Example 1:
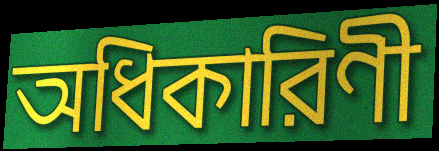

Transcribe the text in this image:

অধিকারিণী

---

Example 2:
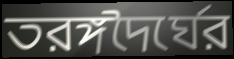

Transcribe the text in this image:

তরঙ্গদৈর্ঘের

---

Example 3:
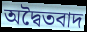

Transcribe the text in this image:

অদ্বৈতবাদ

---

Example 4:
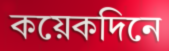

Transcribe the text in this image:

কয়েকদিনে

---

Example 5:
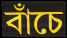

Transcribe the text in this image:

বাঁচে